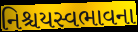
નિશ્ચયસ્વભાવના